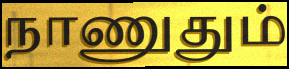
நாணுதும்